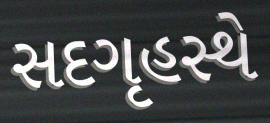
સદગૃહસ્થે